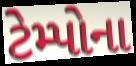
ટેમ્પોના